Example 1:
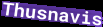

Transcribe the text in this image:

Thusnavis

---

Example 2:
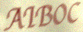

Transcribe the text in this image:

AIBOC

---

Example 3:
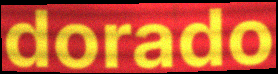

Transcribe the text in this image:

dorado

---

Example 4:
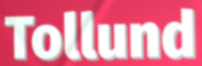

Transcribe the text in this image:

Tollund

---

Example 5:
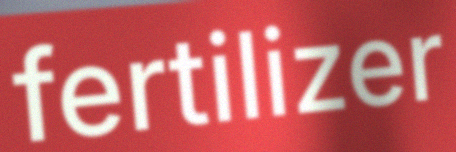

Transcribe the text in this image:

fertilizer